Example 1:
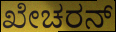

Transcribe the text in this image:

ಖೇಚರನ್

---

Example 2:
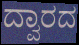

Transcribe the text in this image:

ದ್ವಾರದ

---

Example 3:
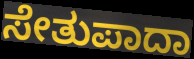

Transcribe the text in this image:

ಸೇತುಪಾದಾ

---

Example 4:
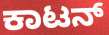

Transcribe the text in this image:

ಕಾಟನ್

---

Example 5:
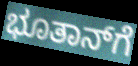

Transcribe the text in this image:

ಭೂತಾನ್‌ಗೆ